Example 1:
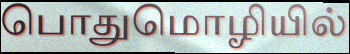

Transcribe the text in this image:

பொதுமொழியில்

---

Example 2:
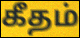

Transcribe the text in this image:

கீதம்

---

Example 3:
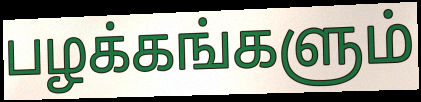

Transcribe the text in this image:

பழக்கங்களும்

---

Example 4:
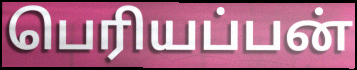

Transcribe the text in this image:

பெரியப்பன்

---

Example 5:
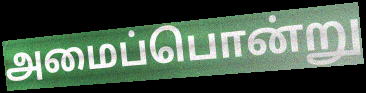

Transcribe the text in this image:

அமைப்பொன்று